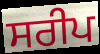
ਸਰੀਪ